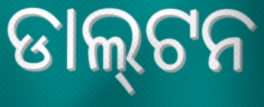
ଡାଲ୍‌ଟନ